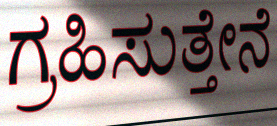
ಗ್ರಹಿಸುತ್ತೇನೆ